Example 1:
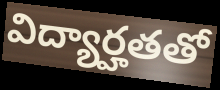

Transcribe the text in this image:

విద్యార్హతతో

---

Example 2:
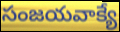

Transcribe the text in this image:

సంజయవాక్యే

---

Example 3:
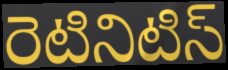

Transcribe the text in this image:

రెటినిటిస్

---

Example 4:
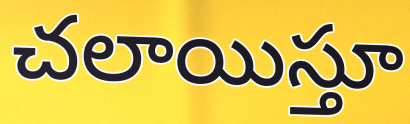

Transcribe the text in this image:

చలాయిస్తూ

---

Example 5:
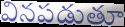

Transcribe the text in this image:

వినపడుతూ